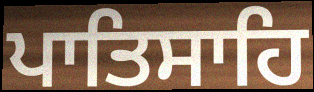
ਪਾਤਿਸਾਹਿ